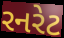
રનરેટ